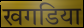
खगडिया